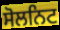
ਸੋਲਨਿਟ